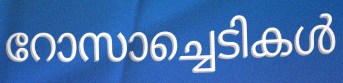
റോസാച്ചെടികൾ